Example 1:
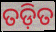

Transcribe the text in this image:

ତଡ଼ିତ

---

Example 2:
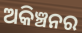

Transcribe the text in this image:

ଅକିଞ୍ଚନର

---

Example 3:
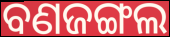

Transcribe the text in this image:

ବଣଜଙ୍ଗଲ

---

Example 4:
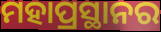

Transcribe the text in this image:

ମହାପ୍ରସ୍ଥାନର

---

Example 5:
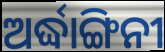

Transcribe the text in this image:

ଅର୍ଦ୍ଧାଙ୍ଗିନୀ